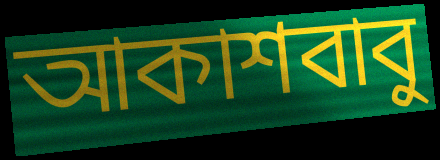
আকাশবাবু